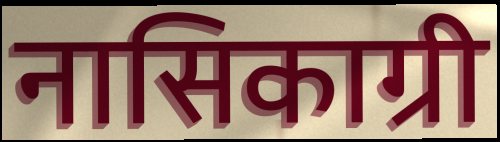
नासिकाग्री